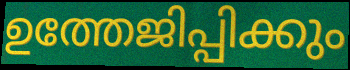
ഉത്തേജിപ്പിക്കും